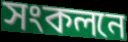
সংকলনে